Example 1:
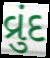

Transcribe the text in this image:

વ્રુંદ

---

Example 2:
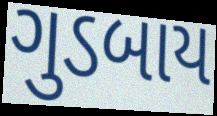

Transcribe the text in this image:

ગુડબાય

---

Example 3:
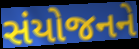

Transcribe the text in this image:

સંયોજનને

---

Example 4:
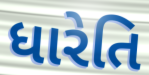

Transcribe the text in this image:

ધારેતિ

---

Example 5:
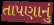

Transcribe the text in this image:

તાપણાનું